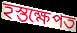
হস্তক্ষেপত